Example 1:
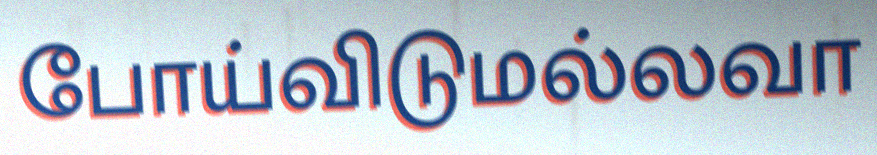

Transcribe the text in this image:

போய்விடுமல்லவா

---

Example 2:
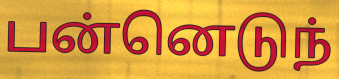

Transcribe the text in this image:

பன்னெடுந்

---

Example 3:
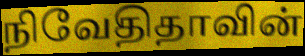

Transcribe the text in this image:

நிவேதிதாவின்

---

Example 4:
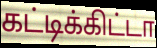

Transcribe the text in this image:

கட்டிக்கிட்டா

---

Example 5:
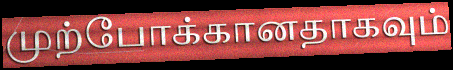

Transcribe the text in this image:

முற்போக்கானதாகவும்